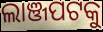
ଲାଞ୍ଜପଟକୁ